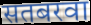
सतबरवा